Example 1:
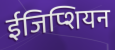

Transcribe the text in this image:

ईजिप्शियन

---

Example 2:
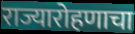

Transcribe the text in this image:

राज्यारोहणाचा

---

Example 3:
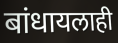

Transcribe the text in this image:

बांधायलाही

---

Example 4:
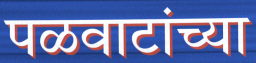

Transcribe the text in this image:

पळवाटांच्या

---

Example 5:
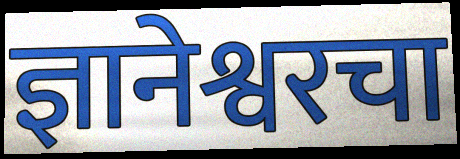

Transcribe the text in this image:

ज्ञानेश्वरचा